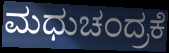
ಮಧುಚಂದ್ರಕೆ